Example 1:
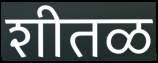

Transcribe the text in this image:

शीतळ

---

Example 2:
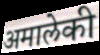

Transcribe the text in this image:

अमालेकी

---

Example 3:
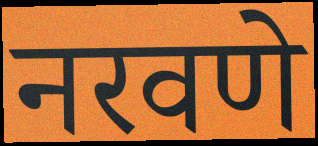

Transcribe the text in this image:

नरवणे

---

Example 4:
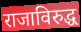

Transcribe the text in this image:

राजाविरुद्ध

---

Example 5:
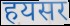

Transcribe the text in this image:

हयसर